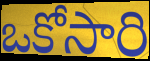
ఒకోసారి